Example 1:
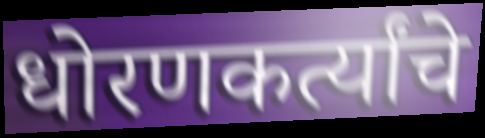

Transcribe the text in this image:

धोरणकर्त्यांचे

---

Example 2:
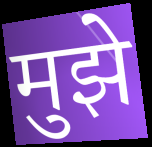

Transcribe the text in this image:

मुझे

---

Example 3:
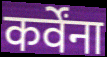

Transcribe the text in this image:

कर्वेंना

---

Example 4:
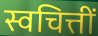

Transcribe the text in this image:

स्वचित्तीं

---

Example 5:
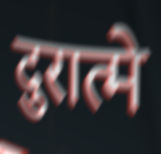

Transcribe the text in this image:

दुरात्मे